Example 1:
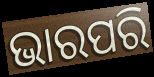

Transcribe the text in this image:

ଭାରପରି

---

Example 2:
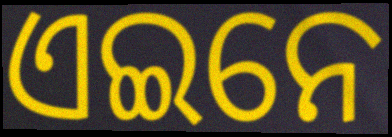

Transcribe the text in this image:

ଏଇନେ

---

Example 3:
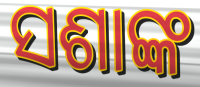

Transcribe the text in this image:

ସଶାଙ୍କ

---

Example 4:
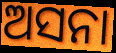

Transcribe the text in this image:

ଅସନା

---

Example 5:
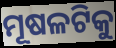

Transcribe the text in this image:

ମୂଷଳଟିକୁ